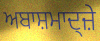
ਅਬਾਸ਼ਮਾਦ੍ਜ਼ੇ